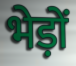
भेड़ों